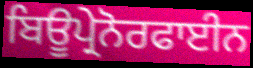
ਬਿਊਪ੍ਰੇਨੋਰਫਾਈਨ